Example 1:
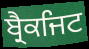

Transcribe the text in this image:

ਬ੍ਰੈਕਜਿਟ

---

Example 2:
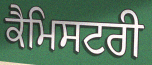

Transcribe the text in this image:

ਕੈਮਿਸਟਰੀ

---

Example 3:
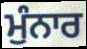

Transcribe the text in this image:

ਮੁੰਨਾਰ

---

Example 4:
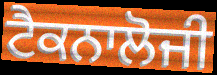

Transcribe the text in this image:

ਟੈਕਨਾਲੋਜੀ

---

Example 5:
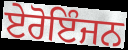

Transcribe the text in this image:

ਏਰੋਇੰਜਨ